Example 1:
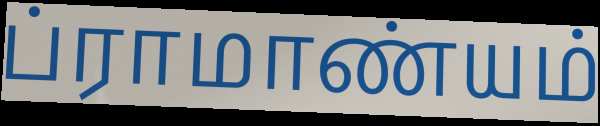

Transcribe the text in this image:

ப்ராமாண்யம்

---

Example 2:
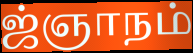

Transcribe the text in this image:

ஜ்ஞாநம்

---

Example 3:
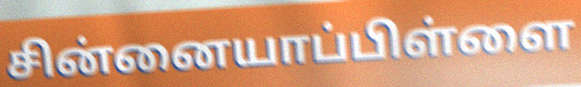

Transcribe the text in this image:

சின்னையாப்பிள்ளை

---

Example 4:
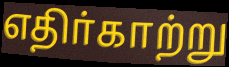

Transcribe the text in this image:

எதிர்காற்று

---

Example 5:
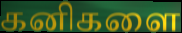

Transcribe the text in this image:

கனிகளை